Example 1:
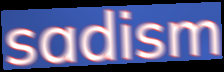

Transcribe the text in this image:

sadism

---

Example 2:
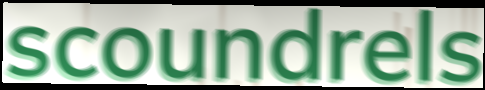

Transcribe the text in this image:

scoundrels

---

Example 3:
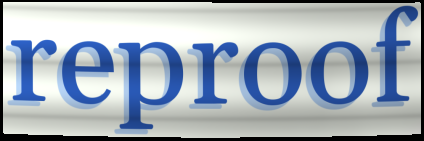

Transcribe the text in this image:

reproof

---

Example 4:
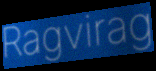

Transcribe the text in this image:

Ragvirag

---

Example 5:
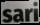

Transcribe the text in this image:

sari